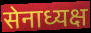
सेनाध्यक्ष